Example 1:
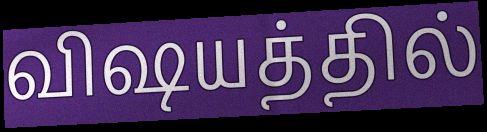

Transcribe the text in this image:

விஷயத்தில்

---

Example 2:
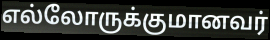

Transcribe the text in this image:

எல்லோருக்குமானவர்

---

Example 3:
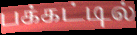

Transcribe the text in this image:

பக்கட்டில்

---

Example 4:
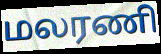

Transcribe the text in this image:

மலரணி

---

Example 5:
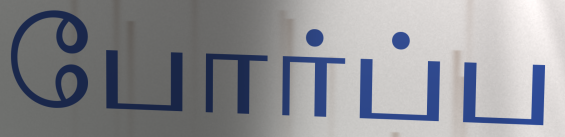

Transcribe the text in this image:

போர்ப்ப